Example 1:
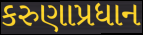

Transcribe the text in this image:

કરુણાપ્રધાન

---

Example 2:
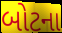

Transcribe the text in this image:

બોટના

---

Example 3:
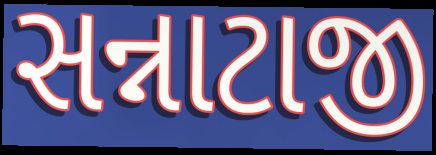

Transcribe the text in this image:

સન્નાટાજી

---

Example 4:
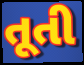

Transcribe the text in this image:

તૂતી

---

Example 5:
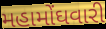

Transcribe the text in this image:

મહામોંઘવારી